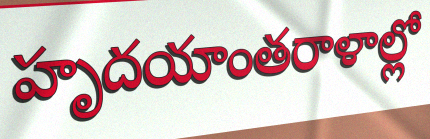
హృదయాంతరాళాల్లో